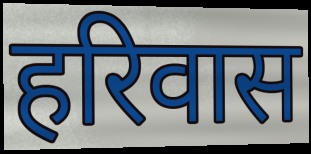
हरिवास